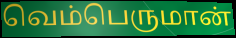
வெம்பெருமான்